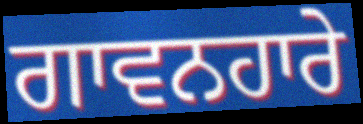
ਗਾਵਨਹਾਰੇ